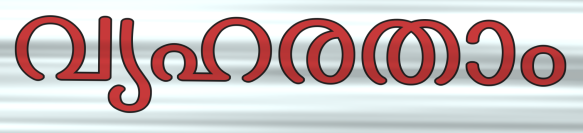
വ്യഹരതാം